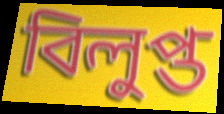
বিলুপ্ত